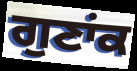
ਗੁਣਾਂਕ